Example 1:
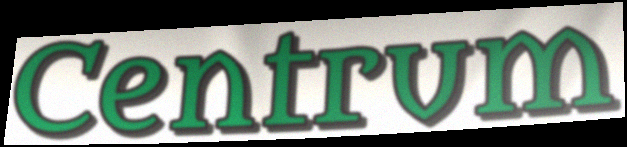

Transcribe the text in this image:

Centrum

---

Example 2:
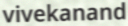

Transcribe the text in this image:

vivekanand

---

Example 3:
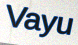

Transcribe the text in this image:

Vayu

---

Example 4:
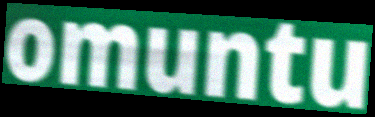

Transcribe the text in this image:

omuntu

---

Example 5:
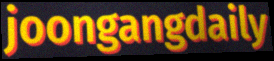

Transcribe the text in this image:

joongangdaily